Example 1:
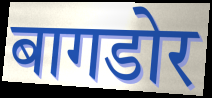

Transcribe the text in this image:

बागडोर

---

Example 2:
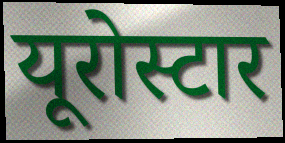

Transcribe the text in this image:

यूरोस्टार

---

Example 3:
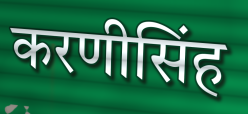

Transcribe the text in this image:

करणीसिंह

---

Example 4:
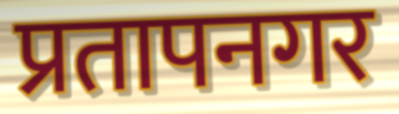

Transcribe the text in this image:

प्रतापनगर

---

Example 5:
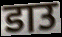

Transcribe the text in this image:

डाउ